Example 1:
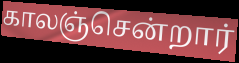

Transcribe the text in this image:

காலஞ்சென்றார்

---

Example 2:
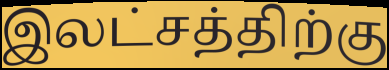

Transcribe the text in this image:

இலட்சத்திற்கு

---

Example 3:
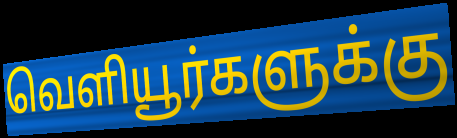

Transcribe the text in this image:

வெளியூர்களுக்கு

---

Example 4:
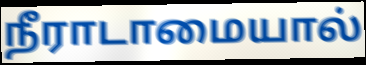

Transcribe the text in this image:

நீராடாமையால்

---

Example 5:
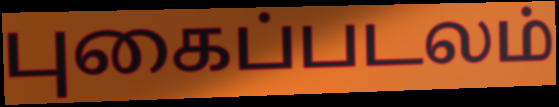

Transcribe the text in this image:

புகைப்படலம்